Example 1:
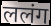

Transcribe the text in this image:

ललंग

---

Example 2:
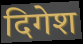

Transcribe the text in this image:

दिगेश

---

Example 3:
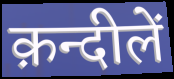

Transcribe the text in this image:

क़न्दीलें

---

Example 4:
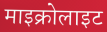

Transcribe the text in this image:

माइक्रोलाइट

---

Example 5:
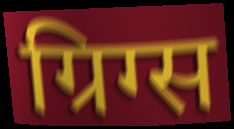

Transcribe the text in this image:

ग्रिग्स